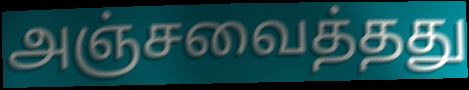
அஞ்சவைத்தது